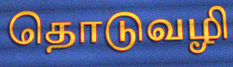
தொடுவழி